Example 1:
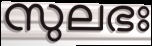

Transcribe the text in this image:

സുലഭഃ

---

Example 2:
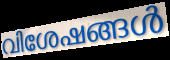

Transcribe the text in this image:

വിശേഷങ്ങൾ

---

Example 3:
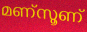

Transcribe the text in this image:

മണ്സൂണ്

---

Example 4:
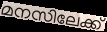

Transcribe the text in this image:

മനസിലേക്ക്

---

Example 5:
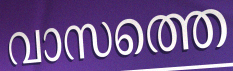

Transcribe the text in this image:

വാസത്തെ